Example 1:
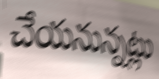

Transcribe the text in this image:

చేయనున్నట్లు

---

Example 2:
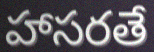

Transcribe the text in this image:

హాసరతే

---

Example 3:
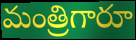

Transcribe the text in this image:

మంత్రిగారూ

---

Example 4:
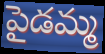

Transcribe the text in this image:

పైడమ్మ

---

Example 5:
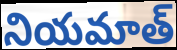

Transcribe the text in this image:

నియమాత్